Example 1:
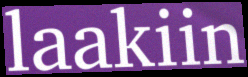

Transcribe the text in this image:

laakiin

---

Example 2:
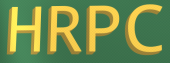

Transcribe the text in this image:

HRPC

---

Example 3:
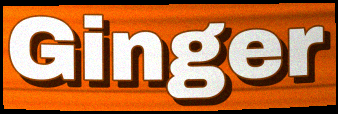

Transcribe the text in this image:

Ginger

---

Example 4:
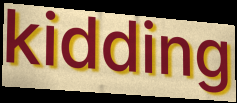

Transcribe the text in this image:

kidding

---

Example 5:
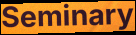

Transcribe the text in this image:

Seminary